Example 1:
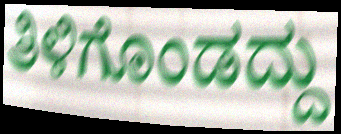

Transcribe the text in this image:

ತಿಳಿಗೊಂಡದ್ದು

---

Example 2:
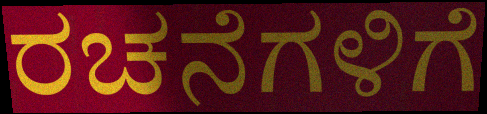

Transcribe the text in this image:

ರಚನೆಗಳಿಗೆ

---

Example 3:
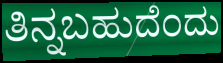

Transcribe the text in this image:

ತಿನ್ನಬಹುದೆಂದು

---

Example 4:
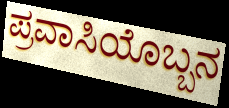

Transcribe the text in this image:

ಪ್ರವಾಸಿಯೊಬ್ಬನ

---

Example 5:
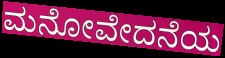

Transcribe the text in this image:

ಮನೋವೇದನೆಯ